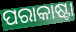
ପରାକାଷ୍ଟା